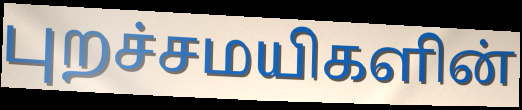
புறச்சமயிகளின்